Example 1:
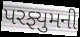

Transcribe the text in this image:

પરફ્યુમની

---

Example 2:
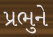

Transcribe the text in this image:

પ્રભુને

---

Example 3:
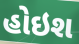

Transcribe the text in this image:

હોઇશ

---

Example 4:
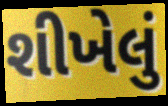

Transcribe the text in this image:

શીખેલું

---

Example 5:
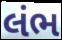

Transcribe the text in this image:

લંભ